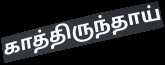
காத்திருந்தாய்